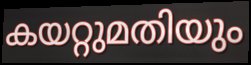
കയറ്റുമതിയും